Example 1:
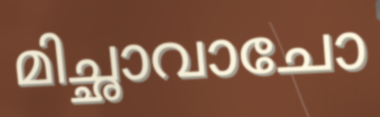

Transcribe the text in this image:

മിച്ഛാവാചോ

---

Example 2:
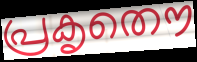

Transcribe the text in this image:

പ്രകൃതൌ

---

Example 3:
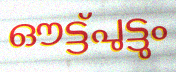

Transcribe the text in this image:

ഔട്ട്പുട്ടും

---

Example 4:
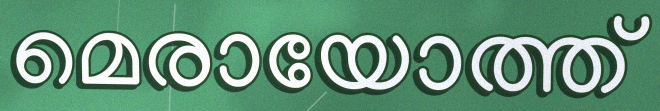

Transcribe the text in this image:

മെരായോത്ത്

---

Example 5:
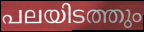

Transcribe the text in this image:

പലയിടത്തും